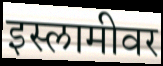
इस्लामीवर